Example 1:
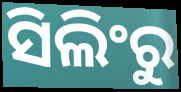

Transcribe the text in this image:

ସିଲିଂରୁ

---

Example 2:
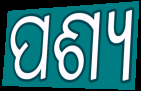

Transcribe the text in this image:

ପଶ୍ୟ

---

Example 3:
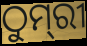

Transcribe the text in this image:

ଠୁମ୍‌ରୀ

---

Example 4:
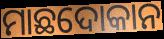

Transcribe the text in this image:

ମାଛଦୋକାନ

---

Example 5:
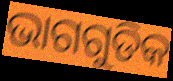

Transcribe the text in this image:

ଭାଗଗୁଡିକ